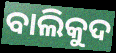
ବାଲିକୁଦ